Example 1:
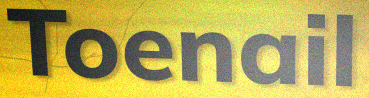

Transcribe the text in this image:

Toenail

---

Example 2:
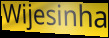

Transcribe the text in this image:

Wijesinha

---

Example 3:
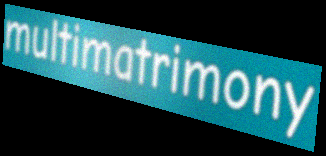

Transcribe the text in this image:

multimatrimony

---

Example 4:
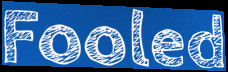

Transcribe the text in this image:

Fooled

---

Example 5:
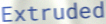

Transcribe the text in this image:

Extruded